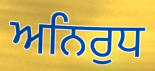
ਅਨਿਰੁਧ